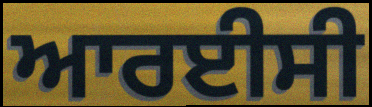
ਆਰਈਸੀ